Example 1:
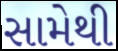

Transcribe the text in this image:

સામેથી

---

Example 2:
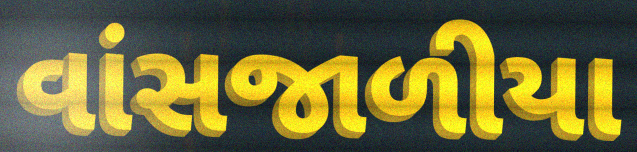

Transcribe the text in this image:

વાંસજાળીયા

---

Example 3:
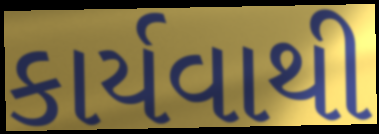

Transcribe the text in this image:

કાર્યવાથી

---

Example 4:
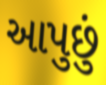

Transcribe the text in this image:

આપુછું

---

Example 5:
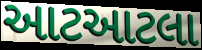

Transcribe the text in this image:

આટઆટલા